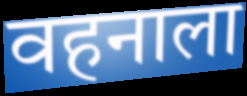
वहनाला